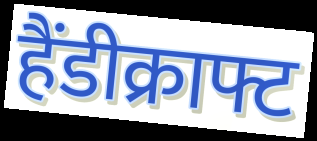
हैंडीक्राफ्ट